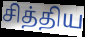
சித்திய